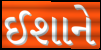
ઈશાને